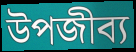
উপজীব্য